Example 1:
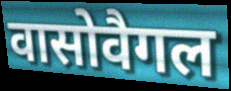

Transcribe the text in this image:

वासोवैगल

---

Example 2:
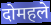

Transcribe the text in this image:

दोमहले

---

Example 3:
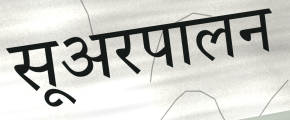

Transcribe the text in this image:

सूअरपालन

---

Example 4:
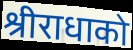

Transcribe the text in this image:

श्रीराधाको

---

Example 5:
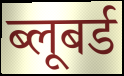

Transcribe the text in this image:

ब्लूबर्ड